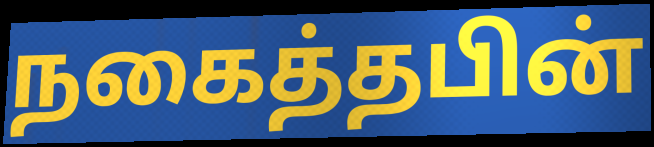
நகைத்தபின்